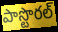
పాస్టొరల్